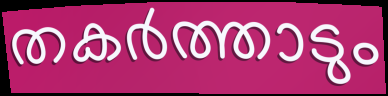
തകർത്താടും